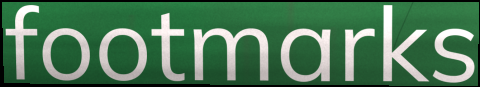
footmarks